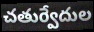
చతుర్వేదుల